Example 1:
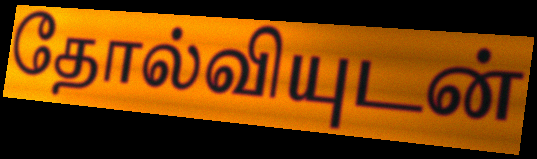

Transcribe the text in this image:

தோல்வியுடன்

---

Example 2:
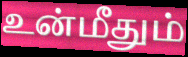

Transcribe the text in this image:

உன்மீதும்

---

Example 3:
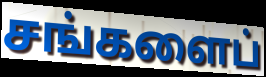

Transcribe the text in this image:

சங்களைப்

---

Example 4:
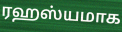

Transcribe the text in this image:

ரஹஸ்யமாக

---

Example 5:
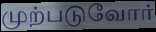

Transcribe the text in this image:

முற்படுவோர்